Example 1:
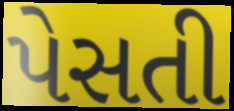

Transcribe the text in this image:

પેસતી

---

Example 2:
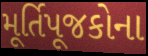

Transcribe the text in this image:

મૂર્તિપૂજકોના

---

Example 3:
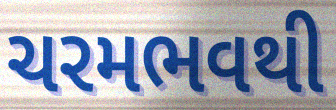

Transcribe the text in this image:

ચરમભવથી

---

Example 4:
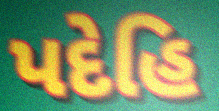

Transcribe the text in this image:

પદેહિ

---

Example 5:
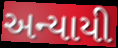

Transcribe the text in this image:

અન્યાયી